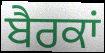
ਬੈਰਕਾਂ